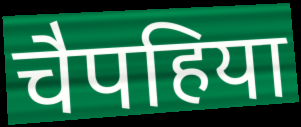
चैपहिया